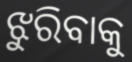
ଝୁରିବାକୁ